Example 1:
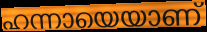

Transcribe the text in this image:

ഹന്നായെയാണ്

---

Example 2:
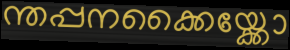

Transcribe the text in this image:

ന്തപ്പനക്കൈയ്ക്കോ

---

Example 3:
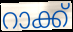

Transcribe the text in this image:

റാക്ക്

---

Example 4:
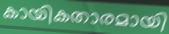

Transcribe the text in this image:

കായികതാരമായി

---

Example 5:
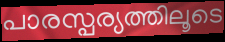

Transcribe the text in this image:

പാരസ്പര്യത്തിലൂടെ